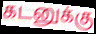
கடனுக்கு